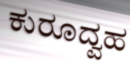
ಕುರೂದ್ವಹ